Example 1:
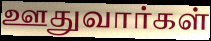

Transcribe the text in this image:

ஊதுவார்கள்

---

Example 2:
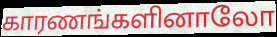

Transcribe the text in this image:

காரணங்களினாலோ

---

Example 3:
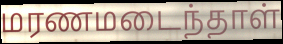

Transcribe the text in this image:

மரணமடைந்தாள்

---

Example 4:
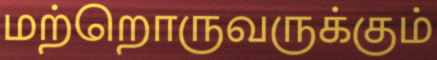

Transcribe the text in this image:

மற்றொருவருக்கும்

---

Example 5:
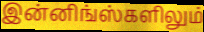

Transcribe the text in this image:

இன்னிங்ஸ்களிலும்